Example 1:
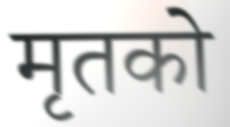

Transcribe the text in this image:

मृतको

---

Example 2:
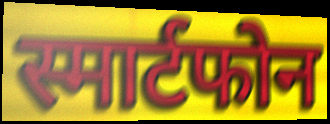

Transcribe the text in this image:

स्मार्टफोन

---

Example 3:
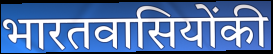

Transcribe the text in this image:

भारतवासियोंकी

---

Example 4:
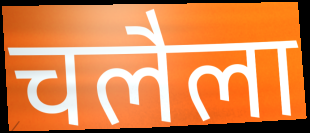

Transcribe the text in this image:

चलैला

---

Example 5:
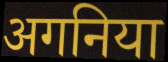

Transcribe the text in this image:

अगनिया